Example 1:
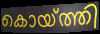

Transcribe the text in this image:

കൊയ്‌ത്തി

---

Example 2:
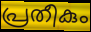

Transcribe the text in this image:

പ്രതീകും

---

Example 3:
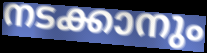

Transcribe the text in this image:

നടക്കാനും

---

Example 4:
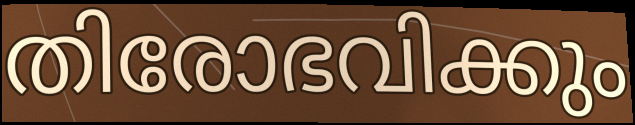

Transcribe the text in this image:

തിരോഭവിക്കും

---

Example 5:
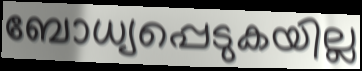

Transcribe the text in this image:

ബോധ്യപ്പെടുകയില്ല